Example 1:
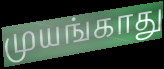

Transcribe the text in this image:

முயங்காது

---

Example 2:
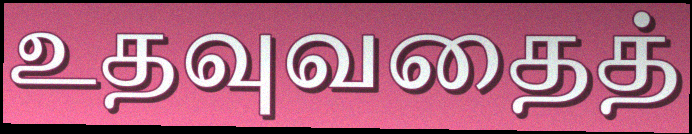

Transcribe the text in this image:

உதவுவதைத்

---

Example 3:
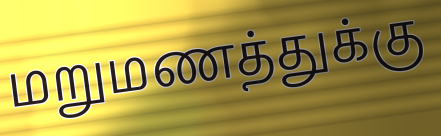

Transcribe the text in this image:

மறுமணத்துக்கு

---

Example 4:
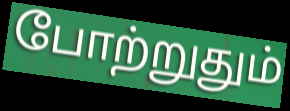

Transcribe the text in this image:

போற்றுதும்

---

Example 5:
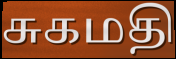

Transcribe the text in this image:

சுகமதி